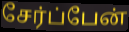
சேர்ப்பேன்